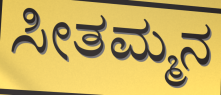
ಸೀತಮ್ಮನ